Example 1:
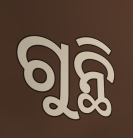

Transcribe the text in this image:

ଗୁନ୍ଥି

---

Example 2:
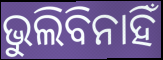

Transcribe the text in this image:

ଭୁଲିବିନାହିଁ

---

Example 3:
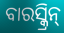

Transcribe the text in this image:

ବାରସ୍କ୍ରିନ୍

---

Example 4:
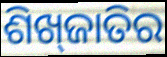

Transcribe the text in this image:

ଶିଖ୍‌ଜାତିର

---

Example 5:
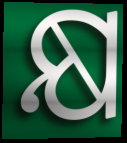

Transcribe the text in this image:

କ୍ଷ